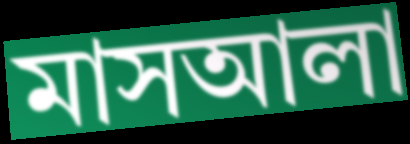
মাসআলা